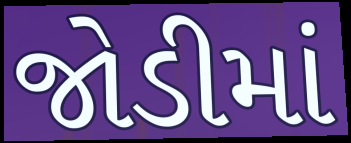
જોડીમાં